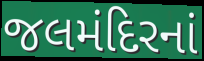
જલમંદિરનાં